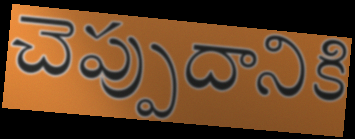
చెప్పుదానికి